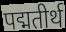
पद्मतीर्थ